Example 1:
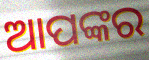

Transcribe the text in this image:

ଆପଙ୍କର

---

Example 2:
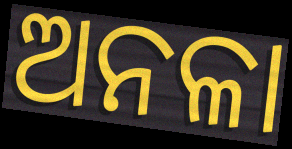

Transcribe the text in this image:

ଅନଳା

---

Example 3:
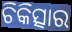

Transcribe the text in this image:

ଚିକିତ୍ସାର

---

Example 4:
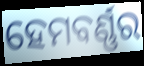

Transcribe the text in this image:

ହେମବର୍ଣ୍ଣର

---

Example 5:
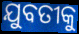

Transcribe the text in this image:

ଯୁବତୀକୁ